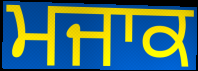
ਮਜਾਕ